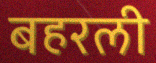
बहरली